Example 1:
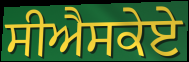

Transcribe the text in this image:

ਸੀਐਸਕੇਏ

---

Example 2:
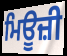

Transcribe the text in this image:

ਮਿਊਜ਼ੀ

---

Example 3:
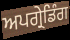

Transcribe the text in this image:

ਅਪਗ੍ਰੇਡਿੰਗ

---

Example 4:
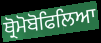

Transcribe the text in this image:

ਥ੍ਰੋਮੋਬੋਫਿਲਿਆ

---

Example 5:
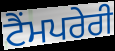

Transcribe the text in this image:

ਟੈਂਮਪਰੇਰੀ